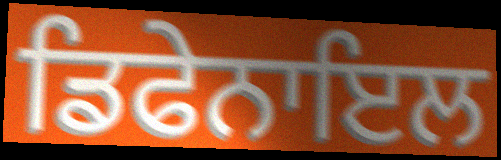
ਡਿਫੇਨਾਇਲ